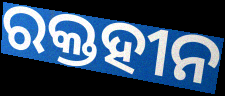
ରକ୍ତହୀନ